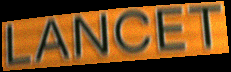
LANCET